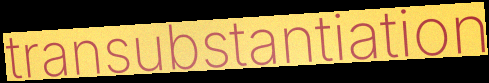
transubstantiation